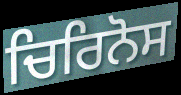
ਚਿਰਿਨੋਸ